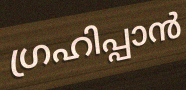
ഗ്രഹിപ്പാൻ